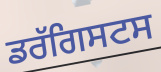
ਡਰੱਗਿਸਟਸ